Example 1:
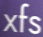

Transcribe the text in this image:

xfs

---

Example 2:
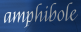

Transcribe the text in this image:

amphibole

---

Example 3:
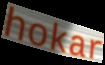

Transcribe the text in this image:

hokar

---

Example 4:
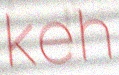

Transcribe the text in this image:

keh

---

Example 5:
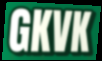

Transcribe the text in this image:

GKVK